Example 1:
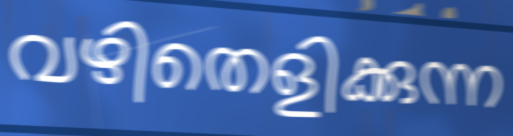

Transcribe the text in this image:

വഴിതെളിക്കുന്ന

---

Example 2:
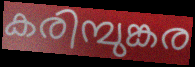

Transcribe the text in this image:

കരിമ്പുങ്കര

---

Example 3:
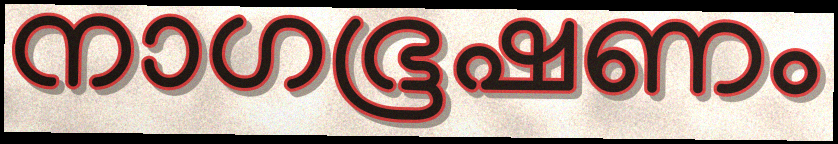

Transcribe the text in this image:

നാഗഭൂഷണം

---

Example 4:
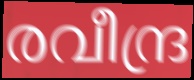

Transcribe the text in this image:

രവീന്ദ്ര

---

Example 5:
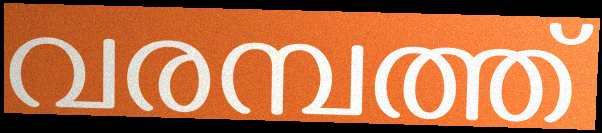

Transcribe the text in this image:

വരമ്പത്ത്